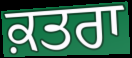
ਕ਼ਤਰਾ